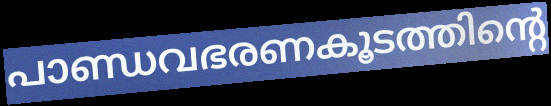
പാണ്ഡവഭരണകൂടത്തിന്റെ